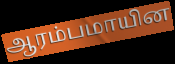
ஆரம்பமாயின